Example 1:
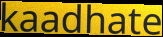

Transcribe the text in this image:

kaadhate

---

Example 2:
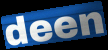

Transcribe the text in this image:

deen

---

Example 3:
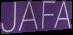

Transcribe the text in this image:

JAFA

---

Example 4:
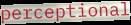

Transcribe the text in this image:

perceptional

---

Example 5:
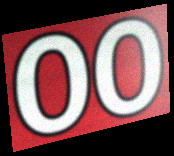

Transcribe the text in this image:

OO